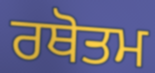
ਰਥੋਤਮ